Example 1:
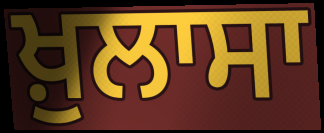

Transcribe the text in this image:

ਖ਼ੁਲਾਸਾ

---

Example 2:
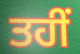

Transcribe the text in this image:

ਤਹੀਂ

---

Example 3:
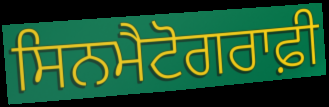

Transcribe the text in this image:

ਸਿਨਮੈਟੋਗਰਾਫ਼ੀ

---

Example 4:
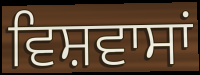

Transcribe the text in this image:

ਵਿਸ਼ਵਾਸਾਂ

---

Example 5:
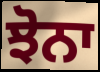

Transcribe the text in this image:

ਝੋਨਾ